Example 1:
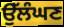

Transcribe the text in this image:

ਉੱਲੰਘਣ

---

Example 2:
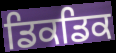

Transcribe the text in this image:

ਡਿਕਡਿਕ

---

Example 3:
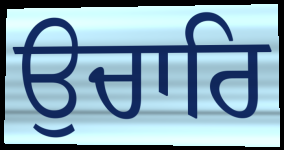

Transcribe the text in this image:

ਉਚਾਰਿ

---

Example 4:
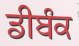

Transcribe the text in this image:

ਡੀਬੰਕ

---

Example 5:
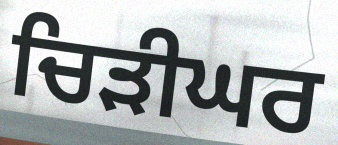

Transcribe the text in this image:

ਚਿੜੀਘਰ